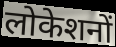
लोकेशनों